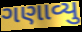
ગણાવ્યુ